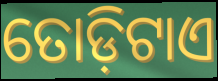
ତୋଡ଼ିଟାଏ